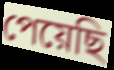
পেয়েছি